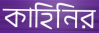
কাহিনির